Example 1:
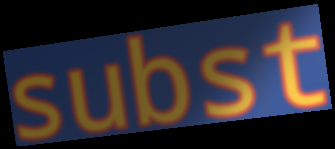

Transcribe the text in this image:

subst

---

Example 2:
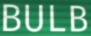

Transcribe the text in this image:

BULB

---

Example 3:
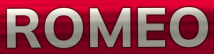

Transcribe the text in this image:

ROMEO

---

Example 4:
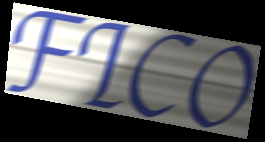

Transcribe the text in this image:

FICO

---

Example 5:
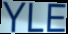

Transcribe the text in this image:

YLE